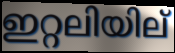
ഇറ്റലിയില്